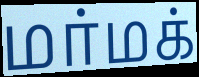
மர்மக்